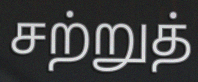
சற்றுத்